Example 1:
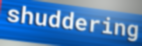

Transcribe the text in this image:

shuddering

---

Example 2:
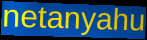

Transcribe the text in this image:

netanyahu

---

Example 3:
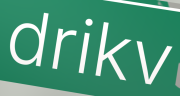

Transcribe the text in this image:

drikv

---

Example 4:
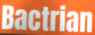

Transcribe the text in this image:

Bactrian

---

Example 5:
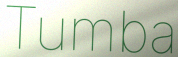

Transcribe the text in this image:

Tumba